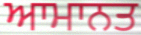
ਆਮਾਨਤ